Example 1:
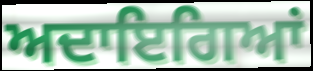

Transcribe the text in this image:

ਅਦਾਇਗਿਆਂ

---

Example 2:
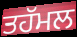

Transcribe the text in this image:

ਤਹੱਮਲ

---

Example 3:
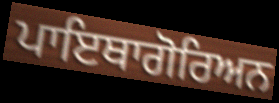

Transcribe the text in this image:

ਪਾਇਥਾਗੋਰਿਅਨ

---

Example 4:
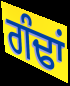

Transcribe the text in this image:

ਗੰਢਾਂ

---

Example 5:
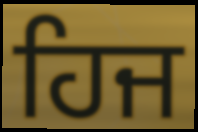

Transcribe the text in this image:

ਹਿਜ